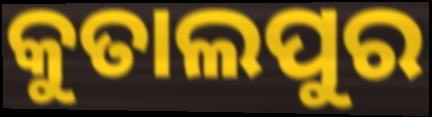
କୁତାଲପୁର